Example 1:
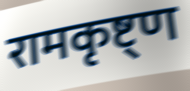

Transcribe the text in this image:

रामकृष्ट्ण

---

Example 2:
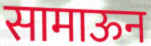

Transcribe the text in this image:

सामाऊन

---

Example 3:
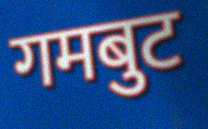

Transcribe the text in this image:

गमबुट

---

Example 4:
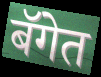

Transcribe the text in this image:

बॅगेत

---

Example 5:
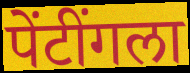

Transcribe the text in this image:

पेंटींगला